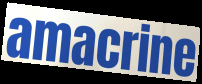
amacrine